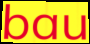
bau